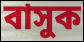
বাসুক